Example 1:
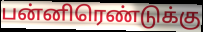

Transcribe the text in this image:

பன்னிரெண்டுக்கு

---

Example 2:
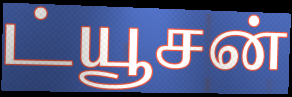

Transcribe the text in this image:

ட்யூசன்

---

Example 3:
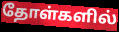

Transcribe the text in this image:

தோள்களில்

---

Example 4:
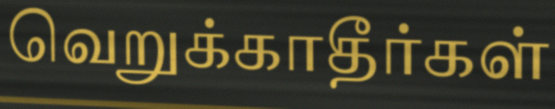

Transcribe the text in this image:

வெறுக்காதீர்கள்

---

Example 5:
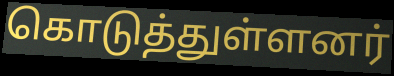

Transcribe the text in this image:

கொடுத்துள்ளனர்